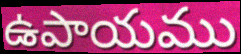
ఉపాయము